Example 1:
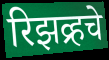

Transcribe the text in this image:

रिझव्र्हचे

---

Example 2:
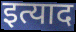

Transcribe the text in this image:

इत्याद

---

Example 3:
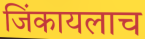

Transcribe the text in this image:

जिंकायलाच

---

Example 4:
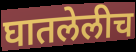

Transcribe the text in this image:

घातलेलीच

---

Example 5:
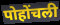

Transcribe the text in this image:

पोहोंचली